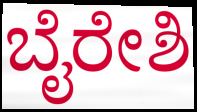
ಬೈರೇಶಿ